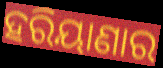
ହରିୟାଣାର